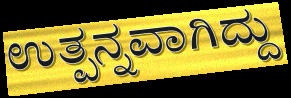
ಉತ್ಪನ್ನವಾಗಿದ್ದು